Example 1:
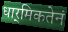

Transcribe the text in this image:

धार्मिकतेनं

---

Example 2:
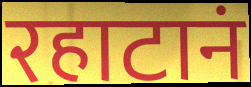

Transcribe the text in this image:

रहाटानं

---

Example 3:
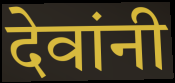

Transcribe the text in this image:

देवांनी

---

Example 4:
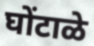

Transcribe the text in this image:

घोंटाळे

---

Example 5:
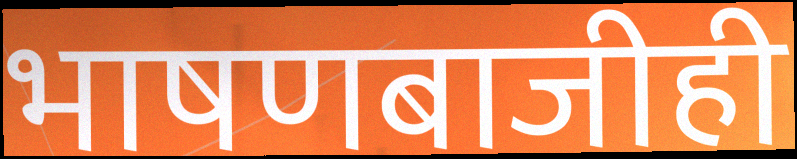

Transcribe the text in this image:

भाषणबाजीही